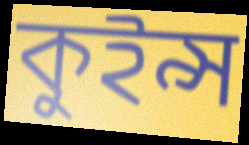
কুইন্স